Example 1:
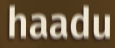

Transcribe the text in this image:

haadu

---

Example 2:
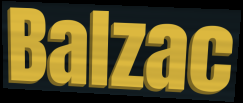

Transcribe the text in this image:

Balzac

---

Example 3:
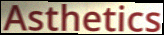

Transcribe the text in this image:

Asthetics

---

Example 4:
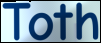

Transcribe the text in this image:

Toth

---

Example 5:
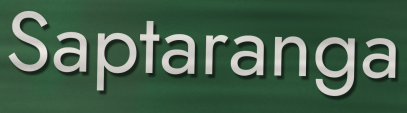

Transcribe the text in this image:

Saptaranga